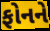
ફોનને